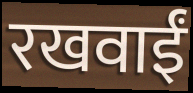
रखवाईं